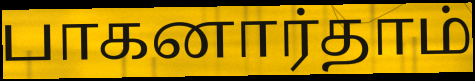
பாகனார்தாம்